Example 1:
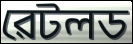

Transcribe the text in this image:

ৱেটলড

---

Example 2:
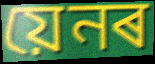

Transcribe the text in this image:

য়েনৰ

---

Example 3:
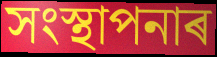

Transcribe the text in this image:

সংস্থাপনাৰ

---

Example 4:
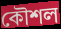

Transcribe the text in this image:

কৌশল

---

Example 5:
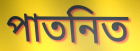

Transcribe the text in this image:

পাতনিত